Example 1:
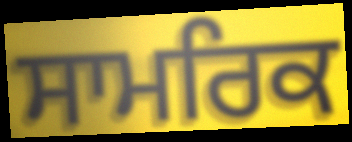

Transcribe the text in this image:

ਸਾਮਰਿਕ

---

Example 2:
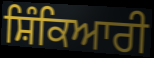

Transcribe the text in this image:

ਸ਼ਿੰਕਿਆਰੀ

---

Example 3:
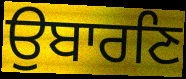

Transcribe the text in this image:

ਉਬਾਰਣਿ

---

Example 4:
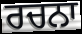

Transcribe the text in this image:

ਰਚਨਾ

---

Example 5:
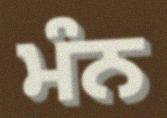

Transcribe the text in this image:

ਮੰਨ